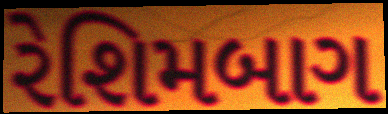
રેશિમબાગ